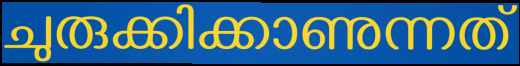
ചുരുക്കിക്കാണുന്നത്